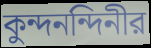
কুন্দনন্দিনীর